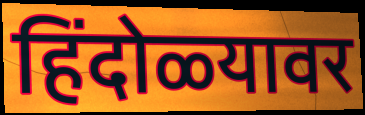
हिंदोळ्यावर